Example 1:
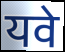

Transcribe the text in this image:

यवे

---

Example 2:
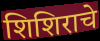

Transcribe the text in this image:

शिशिराचे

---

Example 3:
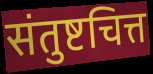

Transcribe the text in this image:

संतुष्टचित्त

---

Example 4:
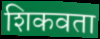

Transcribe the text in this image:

शिकवता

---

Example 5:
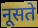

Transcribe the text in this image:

नूसते